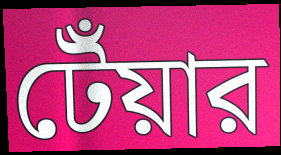
টেঁয়ার